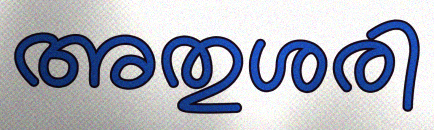
അതുശരി